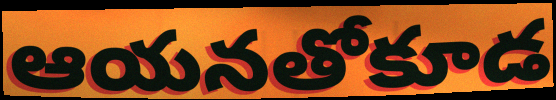
ఆయనతోకూడ